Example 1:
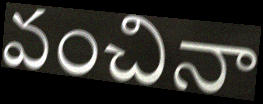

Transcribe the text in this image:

వంచినా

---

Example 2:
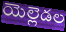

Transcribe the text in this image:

యెల్లెడల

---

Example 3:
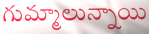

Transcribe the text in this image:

గుమ్మాలున్నాయి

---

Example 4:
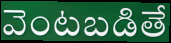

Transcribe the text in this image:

వెంటబడితే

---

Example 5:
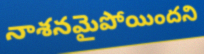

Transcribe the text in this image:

నాశనమైపోయిందని